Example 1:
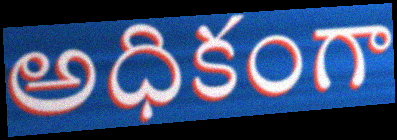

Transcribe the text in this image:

అధికంగా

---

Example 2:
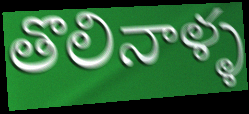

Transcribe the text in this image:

తొలినాళ్ళ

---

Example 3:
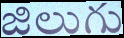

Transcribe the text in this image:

జిలుగు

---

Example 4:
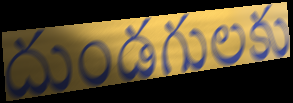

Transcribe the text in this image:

దుండగులకు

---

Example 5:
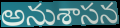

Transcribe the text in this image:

అనుశాసన